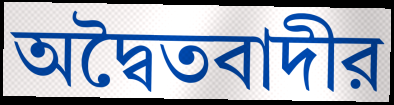
অদ্বৈতবাদীর